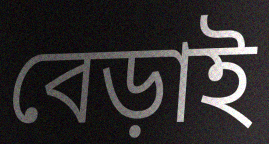
বেড়াই